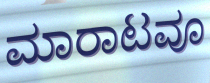
ಮಾರಾಟವೂ